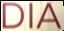
DIA